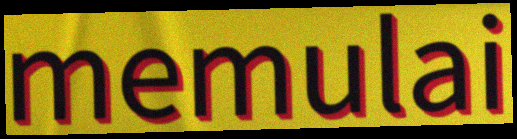
memulai